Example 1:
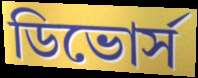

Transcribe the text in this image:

ডিভোর্স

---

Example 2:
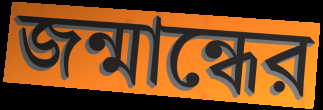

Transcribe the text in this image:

জন্মান্ধের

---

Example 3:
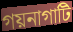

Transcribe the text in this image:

গয়নাগাটি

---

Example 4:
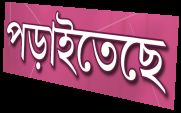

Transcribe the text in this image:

পড়াইতেছে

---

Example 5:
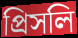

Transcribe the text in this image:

প্রিসলি